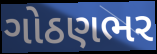
ગોઠણભર